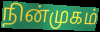
நின்முகம்